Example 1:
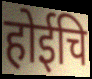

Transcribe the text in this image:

होईचि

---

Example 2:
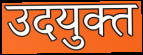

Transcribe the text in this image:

उदयुक्त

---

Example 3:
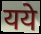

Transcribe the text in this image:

यये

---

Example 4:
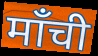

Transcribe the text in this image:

माँची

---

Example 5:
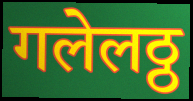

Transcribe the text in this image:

गलेलठ्ठ